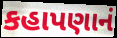
કહાપણાનં